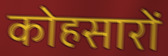
कोहसारों